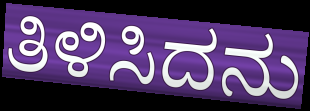
ತಿಳಿಸಿದನು